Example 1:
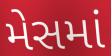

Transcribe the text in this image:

મેસમાં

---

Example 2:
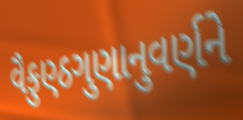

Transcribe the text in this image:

વૈકુણ્ઠગુણાનુવર્ણને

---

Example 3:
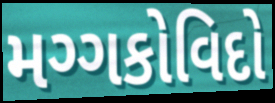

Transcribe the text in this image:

મગ્ગકોવિદો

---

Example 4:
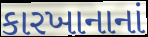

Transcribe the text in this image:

કારખાનાનાં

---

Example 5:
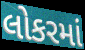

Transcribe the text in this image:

લોકરમાં